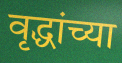
वृद्धांच्या